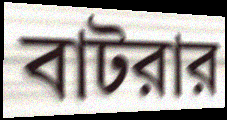
বাটরার